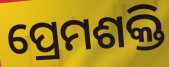
ପ୍ରେମଶକ୍ତି